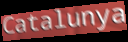
Catalunya